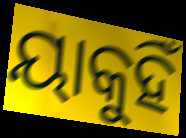
ୟାକୁହିଁ